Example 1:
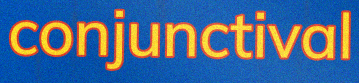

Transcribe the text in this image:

conjunctival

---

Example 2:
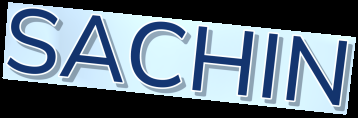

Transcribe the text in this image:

SACHIN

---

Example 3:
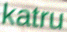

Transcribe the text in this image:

katru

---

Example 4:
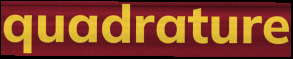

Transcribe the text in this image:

quadrature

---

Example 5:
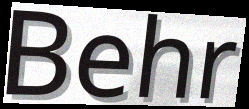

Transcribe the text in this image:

Behr